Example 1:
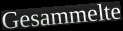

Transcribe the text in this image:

Gesammelte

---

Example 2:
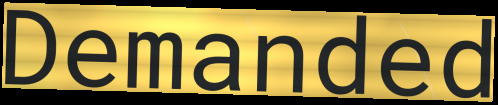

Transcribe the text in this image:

Demanded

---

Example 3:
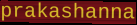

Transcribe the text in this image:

prakashanna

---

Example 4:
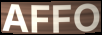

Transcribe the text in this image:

AFFO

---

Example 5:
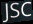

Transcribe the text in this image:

JSC